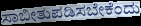
ಸಾಬೀತುಪಡಿಸಬೇಕೆಂದು